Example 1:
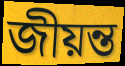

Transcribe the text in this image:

জীয়ন্ত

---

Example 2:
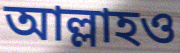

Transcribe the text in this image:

আল্লাহও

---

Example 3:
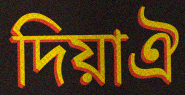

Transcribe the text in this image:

দিয়াঐ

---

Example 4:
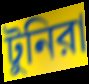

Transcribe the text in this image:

টুনিরা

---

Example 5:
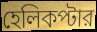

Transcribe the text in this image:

হেলিকপ্টার